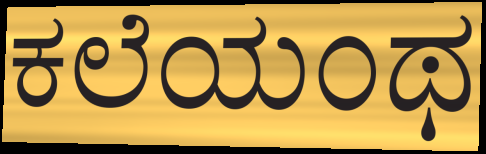
ಕಲೆಯಂಥ